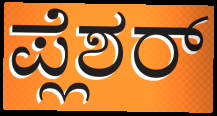
ಪ್ಲೆಶರ್